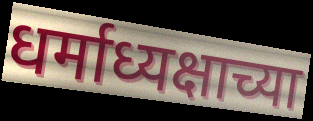
धर्माध्यक्षाच्या